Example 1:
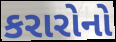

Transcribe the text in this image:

કરારોનો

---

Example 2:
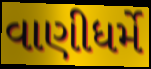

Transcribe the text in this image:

વાણીધર્મે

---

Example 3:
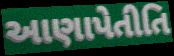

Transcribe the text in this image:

આણાપેતીતિ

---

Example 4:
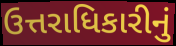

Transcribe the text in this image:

ઉત્તરાધિકારીનું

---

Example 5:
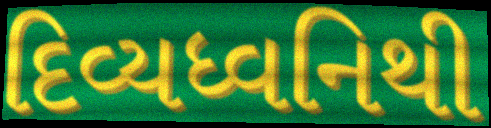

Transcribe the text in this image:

દિવ્યધ્વનિથી